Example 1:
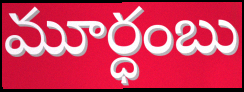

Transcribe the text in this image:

మూర్ధంబు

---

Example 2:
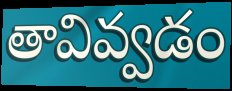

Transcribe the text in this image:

తావివ్వడం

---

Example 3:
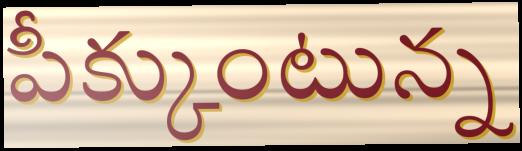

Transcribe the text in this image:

పీక్కుంటున్న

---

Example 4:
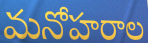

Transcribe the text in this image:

మనోహరాల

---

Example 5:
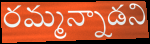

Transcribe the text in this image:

రమ్మన్నాడని